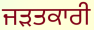
ਜੜਤਕਾਰੀ